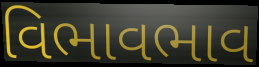
વિભાવભાવ